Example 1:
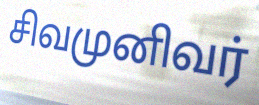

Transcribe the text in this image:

சிவமுனிவர்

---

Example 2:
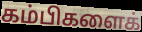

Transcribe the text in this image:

கம்பிகளைக்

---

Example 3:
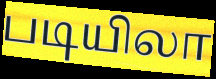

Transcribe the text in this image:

படியிலா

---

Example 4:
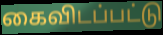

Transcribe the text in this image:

கைவிடப்பட்டு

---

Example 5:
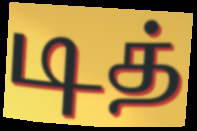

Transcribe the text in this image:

டித்